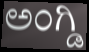
ಅಂಗ್ಡಿ